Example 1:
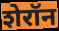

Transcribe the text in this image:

शेरॉन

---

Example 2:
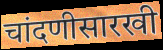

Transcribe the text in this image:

चांदणीसारखी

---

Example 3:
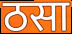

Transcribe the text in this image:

ठसा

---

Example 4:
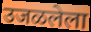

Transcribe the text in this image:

उजळलेला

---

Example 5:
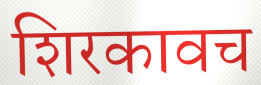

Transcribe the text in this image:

शिरकावच